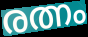
രത്നം